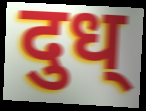
दुध्